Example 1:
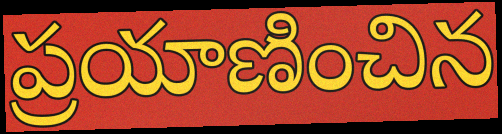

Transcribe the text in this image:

ప్రయాణించిన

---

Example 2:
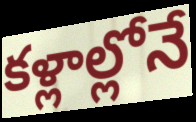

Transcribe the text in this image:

కళ్లాల్లోనే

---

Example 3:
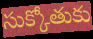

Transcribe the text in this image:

సుక్కోతుకు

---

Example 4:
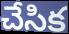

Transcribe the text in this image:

చేసిక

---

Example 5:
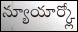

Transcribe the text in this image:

న్యూయార్క్లో